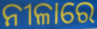
ନୀଳାରେ